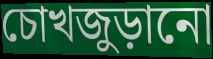
চোখজুড়ানো